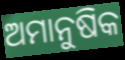
ଅମାନୁଷିକ